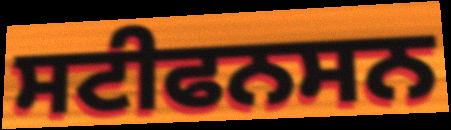
ਸਟੀਫਨਸਨ